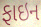
ફાઇન